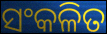
ସଂକଳିତ